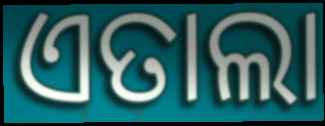
ଏତାଲା